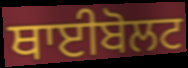
ਥਾਈਬੋਲਟ